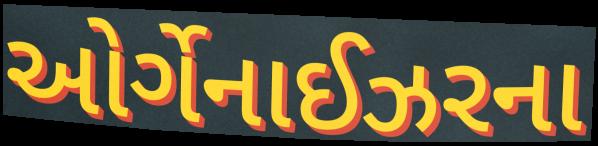
ઓર્ગેનાઈઝરના